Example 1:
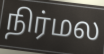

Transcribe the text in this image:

நிர்மல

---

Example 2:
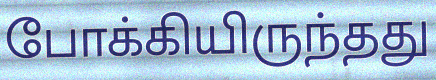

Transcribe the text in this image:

போக்கியிருந்தது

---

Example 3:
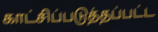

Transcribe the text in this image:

காட்சிப்படுத்தப்பட்ட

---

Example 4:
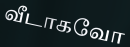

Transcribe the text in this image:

வீடாகவோ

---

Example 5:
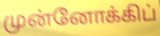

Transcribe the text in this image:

முன்னோக்கிப்